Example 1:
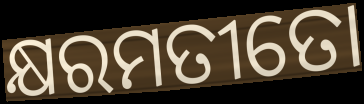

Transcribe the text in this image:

କ୍ଷରମତୀତୋ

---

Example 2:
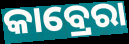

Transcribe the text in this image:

କାବ୍ରେରା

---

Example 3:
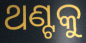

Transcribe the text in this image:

ଥଣ୍ଟକୁ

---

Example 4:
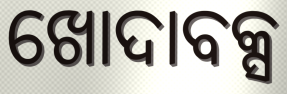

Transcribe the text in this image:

ଖୋଦାବକ୍ସ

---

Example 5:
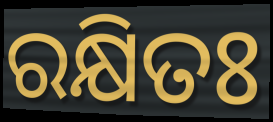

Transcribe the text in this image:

ରକ୍ଷିତଃ